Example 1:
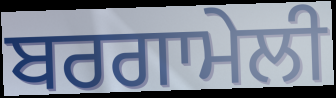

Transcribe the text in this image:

ਬਰਗਾਮੇਲੀ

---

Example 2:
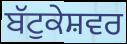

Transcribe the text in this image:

ਬੱਟੁਕੇਸ਼ਵਰ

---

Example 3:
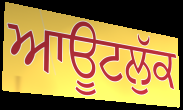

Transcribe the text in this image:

ਆਊਟਲੁੱਕ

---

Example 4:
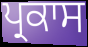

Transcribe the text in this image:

ਪ੍ਰਕਾਸ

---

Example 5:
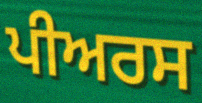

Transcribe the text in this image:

ਪੀਅਰਸ